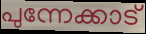
പുന്നേക്കാട്